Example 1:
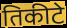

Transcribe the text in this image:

तिकीटे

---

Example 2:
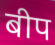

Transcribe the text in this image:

बीप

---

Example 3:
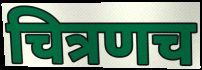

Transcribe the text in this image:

चित्रणच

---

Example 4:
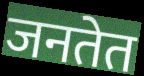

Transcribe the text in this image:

जनतेत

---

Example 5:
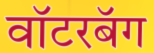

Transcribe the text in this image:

वॉटरबॅग